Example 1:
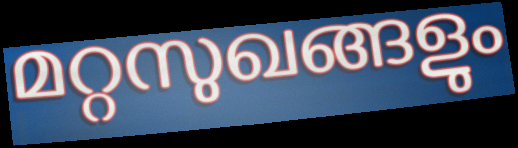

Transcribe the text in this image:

മറ്റസുഖങ്ങളും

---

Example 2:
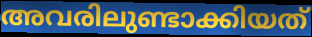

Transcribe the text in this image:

അവരിലുണ്ടാക്കിയത്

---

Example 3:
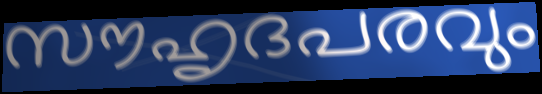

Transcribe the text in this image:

സൗഹൃദപരവും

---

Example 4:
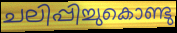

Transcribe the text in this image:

ചലിപ്പിച്ചുകൊണ്ടു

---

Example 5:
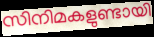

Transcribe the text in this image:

സിനിമകളുണ്ടായി